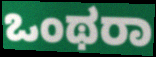
ಒಂಥರಾ